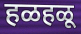
हळहळू